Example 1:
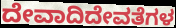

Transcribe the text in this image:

ದೇವಾದಿದೇವತೆಗಳ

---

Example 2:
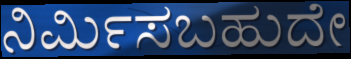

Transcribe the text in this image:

ನಿರ್ಮಿಸಬಹುದೇ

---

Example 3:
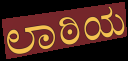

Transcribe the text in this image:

ಲಾಠಿಯ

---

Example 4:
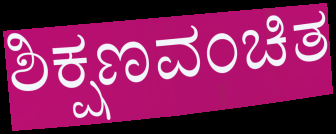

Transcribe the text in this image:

ಶಿಕ್ಷಣವಂಚಿತ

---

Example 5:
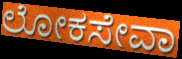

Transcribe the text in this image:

ಲೋಕಸೇವಾ